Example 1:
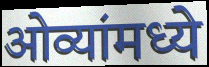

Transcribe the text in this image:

ओव्यांमध्ये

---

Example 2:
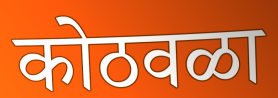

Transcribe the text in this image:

कोठवळा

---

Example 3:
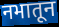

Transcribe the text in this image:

नभातून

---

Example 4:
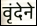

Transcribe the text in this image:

वृंदेने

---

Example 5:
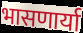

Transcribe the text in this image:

भासणार्या